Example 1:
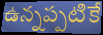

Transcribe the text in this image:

ఉన్నప్పటికే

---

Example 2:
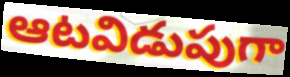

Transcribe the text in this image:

ఆటవిడుపుగా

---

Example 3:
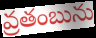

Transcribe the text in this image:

వ్రతంబును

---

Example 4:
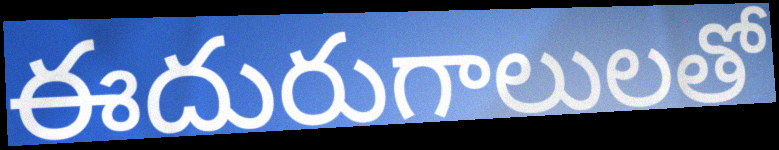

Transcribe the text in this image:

ఈదురుగాలులతో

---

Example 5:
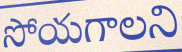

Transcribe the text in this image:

సోయగాలని